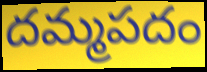
దమ్మపదం